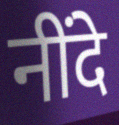
नींदे